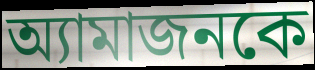
অ্যামাজনকে